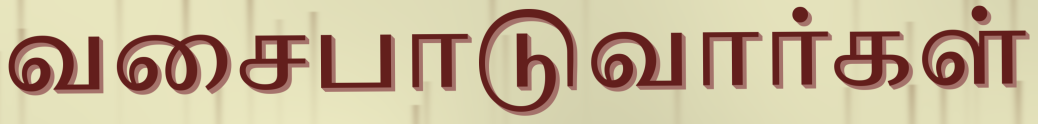
வசைபாடுவார்கள்